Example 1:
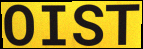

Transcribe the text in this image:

OIST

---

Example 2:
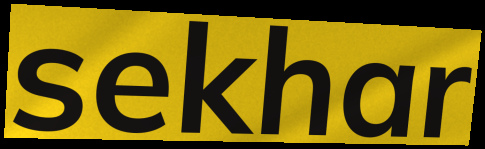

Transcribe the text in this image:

sekhar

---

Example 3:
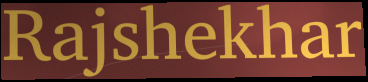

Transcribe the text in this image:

Rajshekhar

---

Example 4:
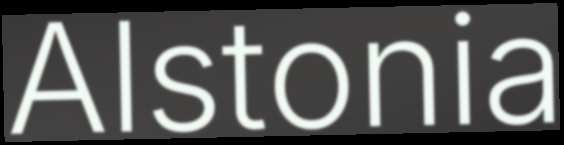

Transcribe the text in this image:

Alstonia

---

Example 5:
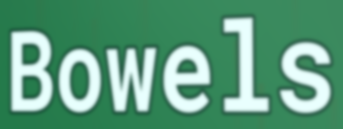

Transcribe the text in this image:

Bowels